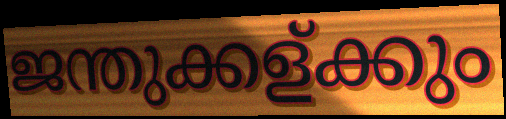
ജന്തുക്കള്ക്കും